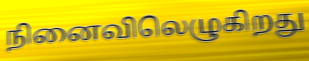
நினைவிலெழுகிறது